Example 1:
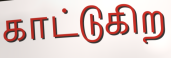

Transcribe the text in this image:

காட்டுகிற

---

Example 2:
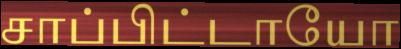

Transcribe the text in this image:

சாப்பிட்டாயோ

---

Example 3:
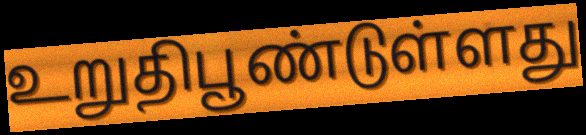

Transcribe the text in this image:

உறுதிபூண்டுள்ளது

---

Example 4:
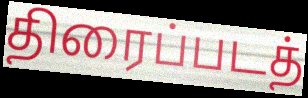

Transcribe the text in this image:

திரைப்படத்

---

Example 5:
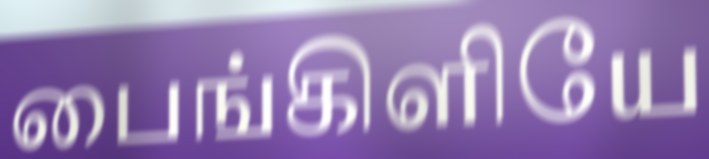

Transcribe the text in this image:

பைங்கிளியே